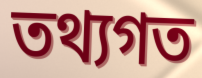
তথ্যগত